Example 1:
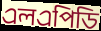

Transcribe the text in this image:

এলএপিডি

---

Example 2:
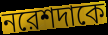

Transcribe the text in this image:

নরেশদাকে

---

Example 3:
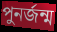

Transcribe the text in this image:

পুনর্জন্ম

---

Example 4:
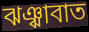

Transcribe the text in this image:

ঝঞ্ঝাবাত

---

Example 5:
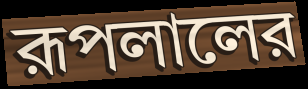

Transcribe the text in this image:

রূপলালের